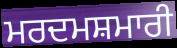
ਮਰਦਮਸ਼ਮਾਰੀ